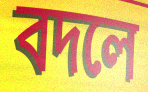
বদলে